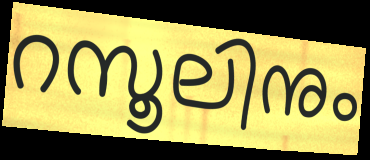
റസൂലിനും